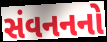
સંવનનનો